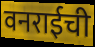
वनराईची